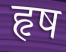
हृष